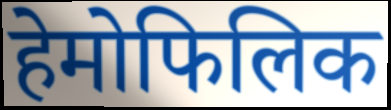
हेमोफिलिक